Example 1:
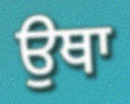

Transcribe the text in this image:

ਉਥਾ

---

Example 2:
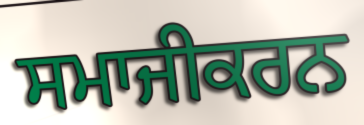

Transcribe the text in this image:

ਸਮਾਜੀਕਰਨ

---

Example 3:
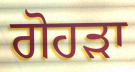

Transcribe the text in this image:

ਗੋਹੜਾ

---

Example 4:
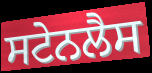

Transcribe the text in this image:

ਸਟੇਨਲੈਸ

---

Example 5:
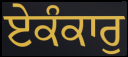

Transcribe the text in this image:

ਏਕੰਕਾਰੁ